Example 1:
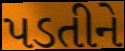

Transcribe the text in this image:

પડતીને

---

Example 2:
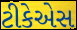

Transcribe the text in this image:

ટીકેએસ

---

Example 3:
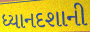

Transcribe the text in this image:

ધ્યાનદશાની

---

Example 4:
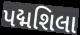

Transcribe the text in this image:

પદ્મશિલા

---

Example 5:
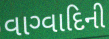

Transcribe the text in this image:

વાગ્વાદિની